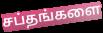
சப்தங்களை